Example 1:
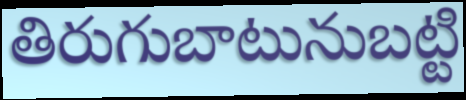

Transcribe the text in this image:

తిరుగుబాటునుబట్టి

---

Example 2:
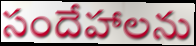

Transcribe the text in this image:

సందేహాలను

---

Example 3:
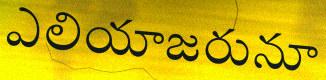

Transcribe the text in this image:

ఎలియాజరునూ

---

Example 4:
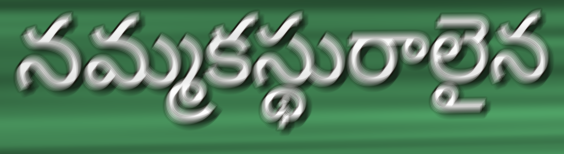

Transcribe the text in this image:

నమ్మకస్థురాలైన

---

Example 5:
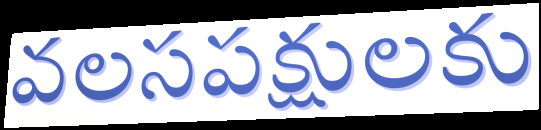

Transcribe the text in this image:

వలసపక్షులకు